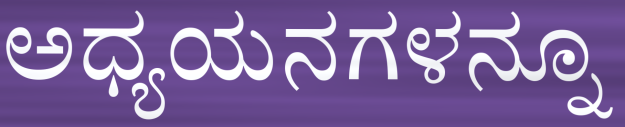
ಅಧ್ಯಯನಗಳನ್ನೂ